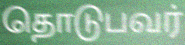
தொடுபவர்